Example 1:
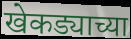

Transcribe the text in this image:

खेकड्याच्या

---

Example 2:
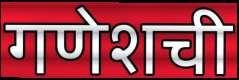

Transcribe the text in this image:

गणेशची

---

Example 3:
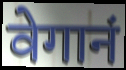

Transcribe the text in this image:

वेगानं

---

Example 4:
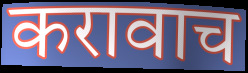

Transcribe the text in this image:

करावाच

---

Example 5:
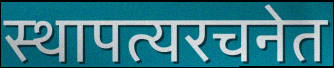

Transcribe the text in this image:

स्थापत्यरचनेत